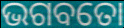
ଭଗବତୋ